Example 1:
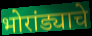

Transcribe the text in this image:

भोरांड्याचे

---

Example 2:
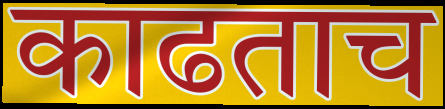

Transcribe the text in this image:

काढताच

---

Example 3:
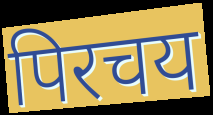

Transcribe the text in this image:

पिरचय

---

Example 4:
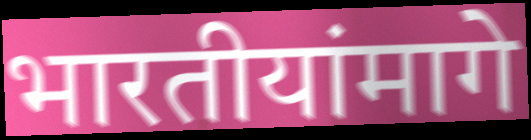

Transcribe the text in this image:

भारतीयांमागे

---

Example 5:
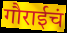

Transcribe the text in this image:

गौराईचं